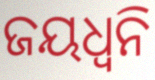
ଜୟଧ୍ୱନି